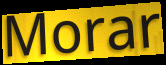
Morar